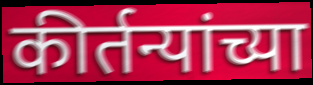
कीर्तन्यांच्या